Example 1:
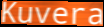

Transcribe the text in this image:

Kuvera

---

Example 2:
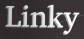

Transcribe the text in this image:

Linky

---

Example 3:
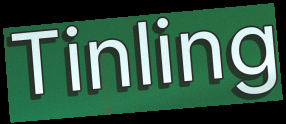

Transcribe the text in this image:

Tinling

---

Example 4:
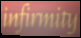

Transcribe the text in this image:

infirmity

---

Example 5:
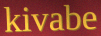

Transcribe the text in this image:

kivabe